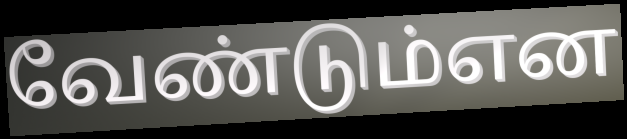
வேண்டும்என